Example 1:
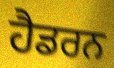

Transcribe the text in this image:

ਹੈਡਰਨ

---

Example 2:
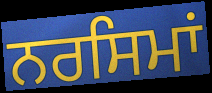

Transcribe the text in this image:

ਨਰਸਿਮਾਂ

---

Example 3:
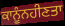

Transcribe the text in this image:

ਕਾਨੂੰਨਹੀਣਤਾ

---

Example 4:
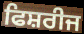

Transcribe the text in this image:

ਫਿਸ਼ਰੀਜ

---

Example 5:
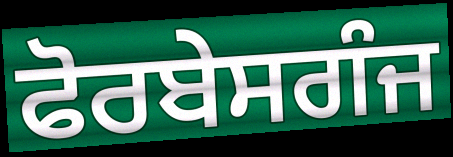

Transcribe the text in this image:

ਫੋਰਬੇਸਗੰਜ